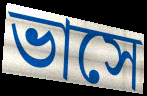
ভাসে